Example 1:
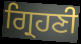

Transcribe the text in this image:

ਗ੍ਰਿਹਣੀ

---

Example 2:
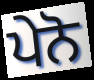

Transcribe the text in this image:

ਪੇਨੋ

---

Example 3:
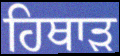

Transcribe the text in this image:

ਹਿਥਾੜ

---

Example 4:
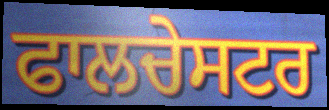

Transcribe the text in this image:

ਫਾਲਚੇਸਟਰ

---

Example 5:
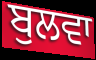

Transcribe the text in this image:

ਬੁਲਵਾ